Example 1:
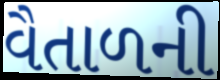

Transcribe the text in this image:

વૈતાળની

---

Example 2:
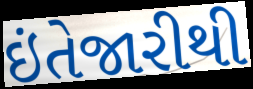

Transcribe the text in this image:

ઇંતેજારીથી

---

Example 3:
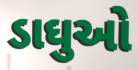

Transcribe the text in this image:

ડાઘુઓ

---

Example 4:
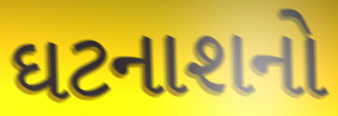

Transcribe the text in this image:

ઘટનાશનો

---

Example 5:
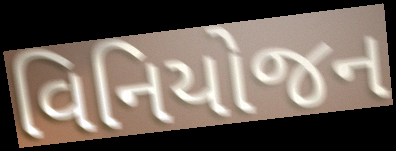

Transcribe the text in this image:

વિનિયોજન